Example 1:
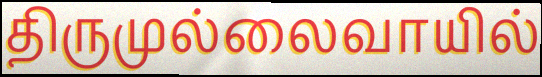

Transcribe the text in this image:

திருமுல்லைவாயில்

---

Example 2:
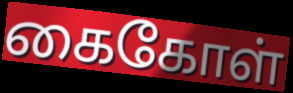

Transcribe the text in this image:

கைகோள்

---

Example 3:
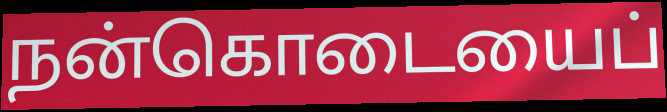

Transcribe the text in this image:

நன்கொடையைப்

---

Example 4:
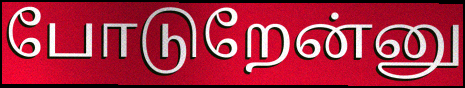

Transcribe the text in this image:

போடுறேன்னு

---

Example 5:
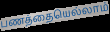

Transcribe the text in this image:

பணத்தையெல்லாம்